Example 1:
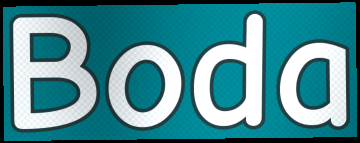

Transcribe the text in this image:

Boda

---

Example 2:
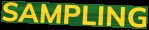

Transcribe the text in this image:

SAMPLING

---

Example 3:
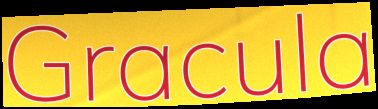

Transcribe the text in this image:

Gracula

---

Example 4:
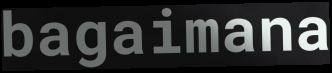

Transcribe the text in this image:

bagaimana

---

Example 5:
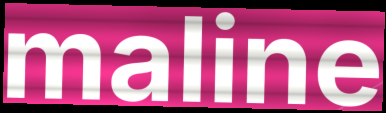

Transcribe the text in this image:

maline